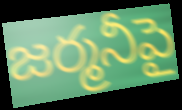
జర్మనీపై